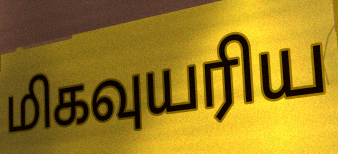
மிகவுயரிய